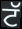
ਟੱ